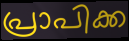
പ്രാപിക്ക